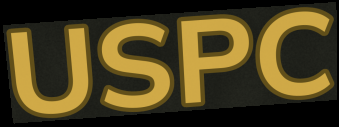
USPC